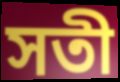
সতী